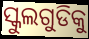
ସ୍କୁଲଗୁଡିକୁ